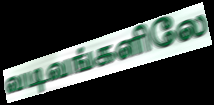
வடிவங்களிலே